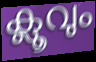
ക്ലൂവും